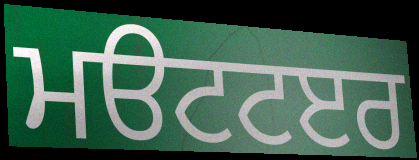
ਮੳਟਟੲਰ